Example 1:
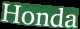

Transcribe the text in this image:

Honda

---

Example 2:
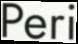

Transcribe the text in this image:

Peri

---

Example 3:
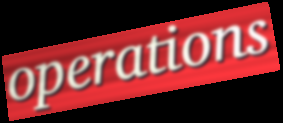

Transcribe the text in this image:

operations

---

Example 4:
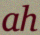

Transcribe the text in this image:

ah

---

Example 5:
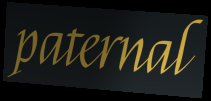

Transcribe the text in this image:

paternal